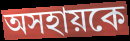
অসহায়কে